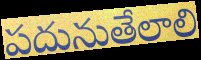
పదునుతేలాలి